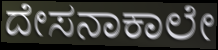
ದೇಸನಾಕಾಲೇ